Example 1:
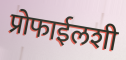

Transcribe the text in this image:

प्रोफाईलशी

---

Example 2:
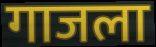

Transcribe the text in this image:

गाजला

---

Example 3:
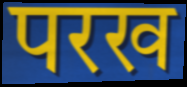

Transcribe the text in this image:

परख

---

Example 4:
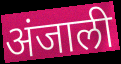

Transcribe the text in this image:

अंजाली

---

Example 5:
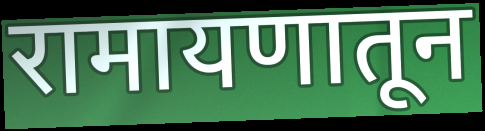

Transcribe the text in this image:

रामायणातून